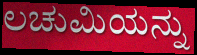
ಲಚುಮಿಯನ್ನು